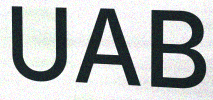
UAB